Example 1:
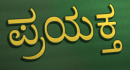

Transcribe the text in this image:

ಪ್ರಯಕ್ತ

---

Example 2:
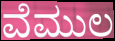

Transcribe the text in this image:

ವೆಮುಲ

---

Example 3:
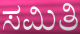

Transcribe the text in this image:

ಸಮಿತಿ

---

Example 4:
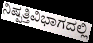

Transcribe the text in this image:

ನಿಷ್ಪತ್ತಿವಿಭಾಗದಲ್ಲಿ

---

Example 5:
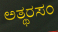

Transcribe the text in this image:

ಅತ್ಥರಸಂ